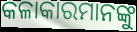
କଳାକାରମାନଙ୍କୁ